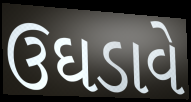
ઉઘડાવે